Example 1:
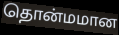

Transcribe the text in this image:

தொன்மமான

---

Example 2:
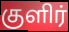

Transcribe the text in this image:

குளிர்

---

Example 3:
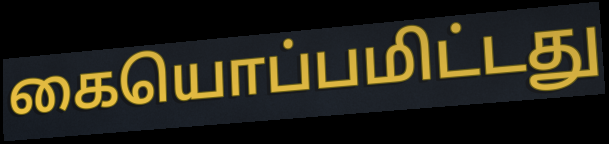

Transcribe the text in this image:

கையொப்பமிட்டது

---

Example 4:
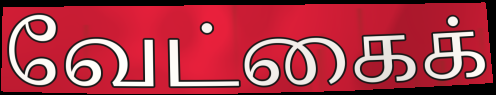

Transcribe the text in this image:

வேட்கைக்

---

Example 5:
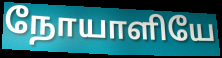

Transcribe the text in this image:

நோயாளியே